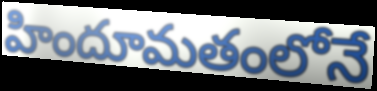
హిందూమతంలోనే